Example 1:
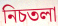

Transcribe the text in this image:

নিচতলা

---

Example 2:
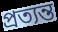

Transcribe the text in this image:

প্রত্যন্ত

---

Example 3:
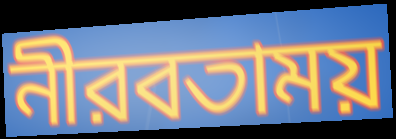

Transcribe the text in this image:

নীরবতাময়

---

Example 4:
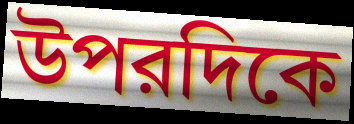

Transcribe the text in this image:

উপরদিকে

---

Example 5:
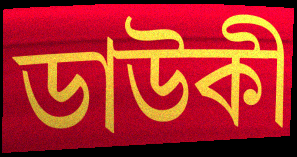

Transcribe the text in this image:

ডাউকী